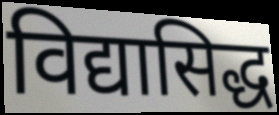
विद्यासिद्ध